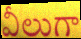
వీలుగా